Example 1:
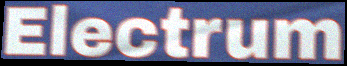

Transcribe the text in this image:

Electrum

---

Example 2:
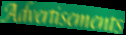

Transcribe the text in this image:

Advertisements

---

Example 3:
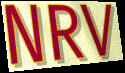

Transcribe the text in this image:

NRV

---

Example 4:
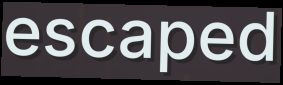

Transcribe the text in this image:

escaped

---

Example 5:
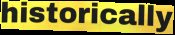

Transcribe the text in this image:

historically